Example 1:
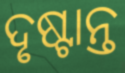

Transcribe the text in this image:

ଦୃଷ୍ଟାନ୍ତ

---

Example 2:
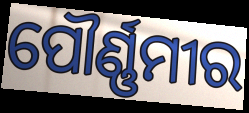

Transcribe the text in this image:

ପୌର୍ଣ୍ଣମୀର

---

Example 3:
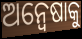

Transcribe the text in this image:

ଅନ୍ୱେଷାକୁ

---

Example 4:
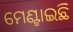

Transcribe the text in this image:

ମେଣ୍ଟାଇଛି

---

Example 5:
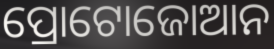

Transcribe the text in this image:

ପ୍ରୋଟୋଜୋଆନ